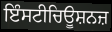
ਇੰਸਟੀਚਿਊਸ਼ਨਜ਼